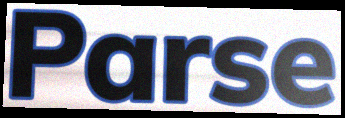
Parse